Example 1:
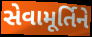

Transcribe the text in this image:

સેવામૂર્તિને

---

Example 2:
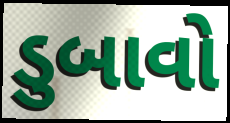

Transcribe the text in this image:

ડુબાવો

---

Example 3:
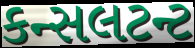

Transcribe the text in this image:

કન્સલટન્ટ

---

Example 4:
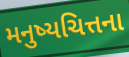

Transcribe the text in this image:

મનુષ્યચિત્તના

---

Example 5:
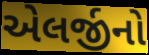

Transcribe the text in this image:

એલર્જીનો